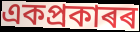
একপ্ৰকাৰৰ